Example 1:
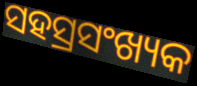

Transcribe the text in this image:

ସହସ୍ରସଂଖ୍ୟକ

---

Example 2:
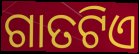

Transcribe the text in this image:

ଗାତଟିଏ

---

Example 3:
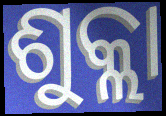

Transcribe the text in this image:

ଶୁକ୍ଲା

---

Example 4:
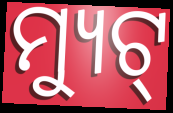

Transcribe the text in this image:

ମ୍ୟୁଟ୍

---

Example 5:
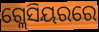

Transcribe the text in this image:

ଗ୍ଲେସିୟରରେ